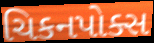
ચિકનપોક્સ